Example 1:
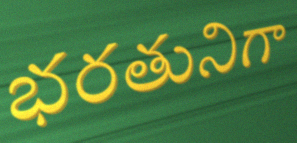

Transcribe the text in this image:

భరతునిగా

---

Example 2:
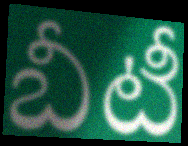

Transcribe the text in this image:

బీటీ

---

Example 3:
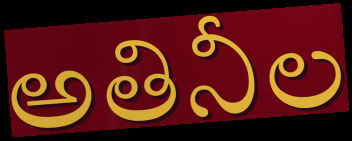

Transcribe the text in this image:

అతినీల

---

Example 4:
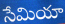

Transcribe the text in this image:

సేమియా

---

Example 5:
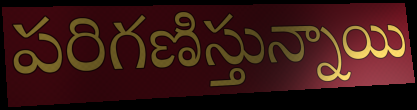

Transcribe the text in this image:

పరిగణిస్తున్నాయి